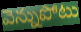
వెన్నుపోటు